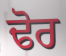
ਢੋਰ